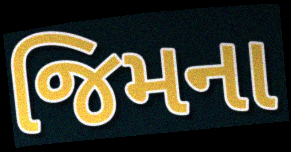
જિમના